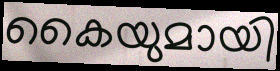
കൈയുമായി